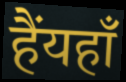
हैंयहाँ